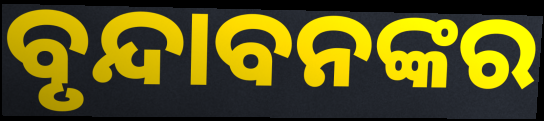
ବୃନ୍ଦାବନଙ୍କର